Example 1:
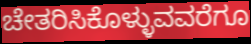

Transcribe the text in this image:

ಚೇತರಿಸಿಕೊಳ್ಳುವವರೆಗೂ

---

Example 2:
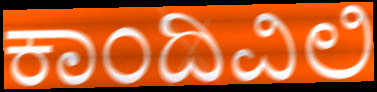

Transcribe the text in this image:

ಕಾಂದಿವಿಲಿ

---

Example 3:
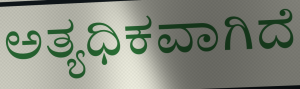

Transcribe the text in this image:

ಅತ್ಯಧಿಕವಾಗಿದೆ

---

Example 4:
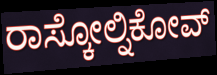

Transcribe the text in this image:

ರಾಸ್ಕೋಲ್ನಿಕೋವ್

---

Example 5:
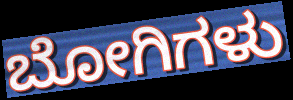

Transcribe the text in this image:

ಬೋಗಿಗಳು